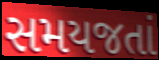
સમયજતાં